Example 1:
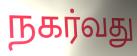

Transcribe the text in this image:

நகர்வது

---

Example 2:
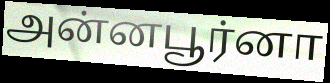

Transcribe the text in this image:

அன்னபூர்னா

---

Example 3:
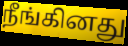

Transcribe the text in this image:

நீங்கினது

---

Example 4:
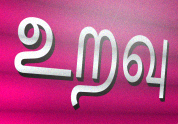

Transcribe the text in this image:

உறவு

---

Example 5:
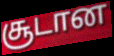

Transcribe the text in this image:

சூடான